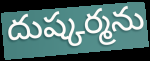
దుష్కర్మను